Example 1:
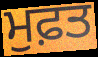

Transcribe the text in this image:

ਮੁਫ਼ਤ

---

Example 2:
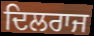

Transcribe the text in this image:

ਦਿਲਰਾਜ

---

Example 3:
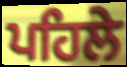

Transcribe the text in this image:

ਪਹਿਲੇ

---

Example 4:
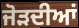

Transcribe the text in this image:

ਜੋੜਦੀਆਂ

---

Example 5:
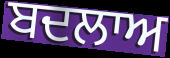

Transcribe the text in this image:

ਬਦਲਾਅ